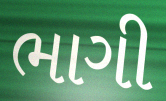
ભાગી